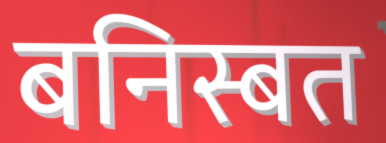
बनिस्‍बत